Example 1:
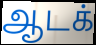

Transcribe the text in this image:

ஆடக்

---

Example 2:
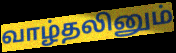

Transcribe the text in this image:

வாழ்தலினும்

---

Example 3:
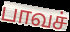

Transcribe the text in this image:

பாவச்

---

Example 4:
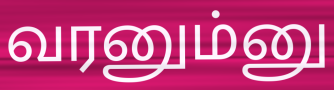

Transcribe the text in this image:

வரனும்னு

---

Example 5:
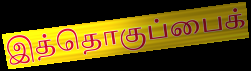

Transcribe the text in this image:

இத்தொகுப்பைக்